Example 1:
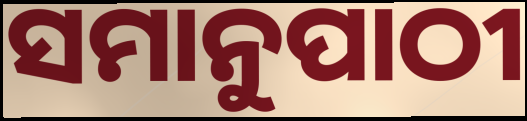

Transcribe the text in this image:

ସମାନୁପାଠୀ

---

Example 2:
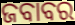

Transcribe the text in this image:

ଜବାବର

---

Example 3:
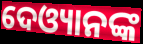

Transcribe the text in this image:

ଦେଓ୍ୟାନଙ୍କ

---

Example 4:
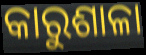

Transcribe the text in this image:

କାରୁଶାଳା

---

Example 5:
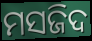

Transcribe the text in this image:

ମସଜିଦ